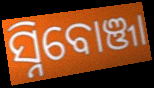
ସ୍ନିବୋଞ୍ଜା